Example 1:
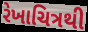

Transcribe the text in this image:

રેખાચિત્રથી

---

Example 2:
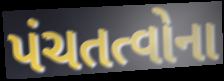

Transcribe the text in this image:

પંચતત્વોના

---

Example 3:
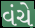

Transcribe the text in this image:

વંચે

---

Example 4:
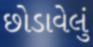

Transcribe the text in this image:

છોડાવેલું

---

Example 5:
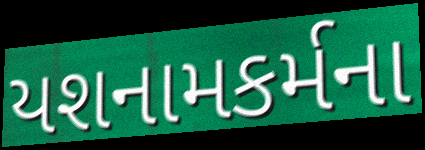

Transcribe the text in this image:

યશનામકર્મના